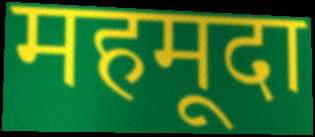
महमूदा